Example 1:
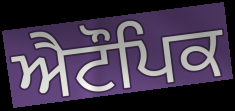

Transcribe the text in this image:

ਐਟੌਪਿਕ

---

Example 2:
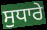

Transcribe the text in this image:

ਸੁਧਾਰੇ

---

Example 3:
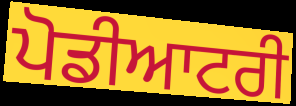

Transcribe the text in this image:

ਪੋਡੀਆਟਰੀ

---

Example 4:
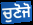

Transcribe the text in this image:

ਚੁਣੋਜੋ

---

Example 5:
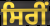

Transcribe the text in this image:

ਸਿਰੀਂ